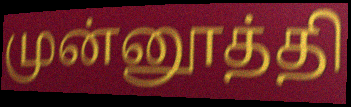
முன்னூத்தி